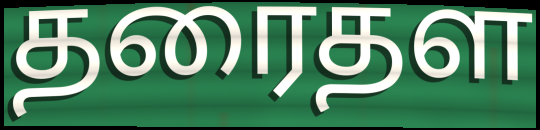
தரைதள